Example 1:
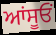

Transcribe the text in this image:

ਆਂਸੂਓਂ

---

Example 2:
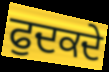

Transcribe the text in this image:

ਫੁਦਕਦੇ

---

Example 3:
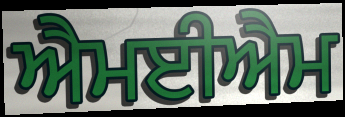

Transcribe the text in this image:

ਐਮਈਐਮ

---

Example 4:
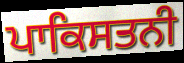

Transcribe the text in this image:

ਪਾਕਿਸਤਨੀ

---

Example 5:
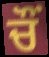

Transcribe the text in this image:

ਚੌਂ